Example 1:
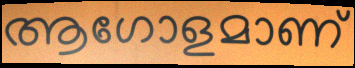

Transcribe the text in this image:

ആഗോളമാണ്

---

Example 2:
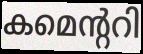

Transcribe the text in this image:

കമെന്ററി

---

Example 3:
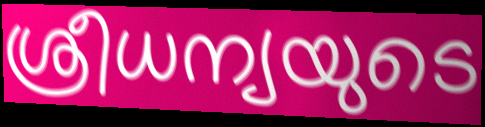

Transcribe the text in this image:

ശ്രീധന്യയുടെ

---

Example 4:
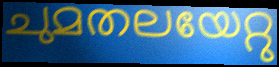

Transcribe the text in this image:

ചുമതലയേറ്റു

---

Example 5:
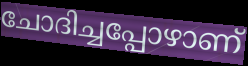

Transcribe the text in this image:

ചോദിച്ചപ്പോഴാണ്